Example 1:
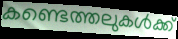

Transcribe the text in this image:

കണ്ടെത്തലുകൾക്ക്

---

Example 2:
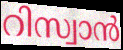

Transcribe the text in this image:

റിസ്വാൻ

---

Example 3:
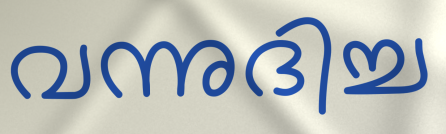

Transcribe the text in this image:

വന്നുദിച്ച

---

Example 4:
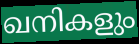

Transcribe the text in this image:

ഖനികളും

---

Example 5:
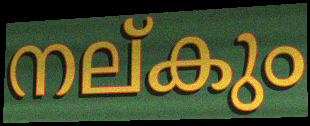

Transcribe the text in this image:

നല്കും